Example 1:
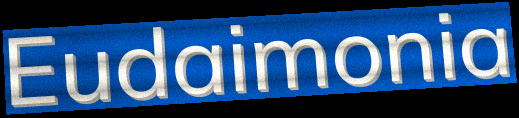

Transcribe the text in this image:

Eudaimonia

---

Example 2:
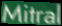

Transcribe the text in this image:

Mitral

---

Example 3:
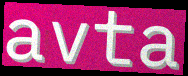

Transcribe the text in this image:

avta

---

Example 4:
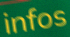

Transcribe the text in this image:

infos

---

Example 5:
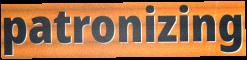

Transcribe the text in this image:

patronizing